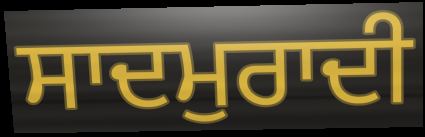
ਸਾਦਮੁਰਾਦੀ